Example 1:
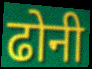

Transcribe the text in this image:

ढोनी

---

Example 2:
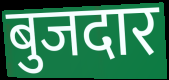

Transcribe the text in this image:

बुजदार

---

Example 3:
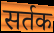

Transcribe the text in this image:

सर्तक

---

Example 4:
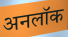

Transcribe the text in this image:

अनलॉक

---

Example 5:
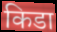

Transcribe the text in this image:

किडा